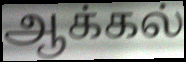
ஆக்கல்